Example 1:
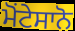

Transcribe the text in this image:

ਮੋਂਟੇਸਾਨੋ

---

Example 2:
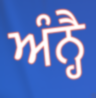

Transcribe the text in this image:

ਅੰਨ੍ਹੈ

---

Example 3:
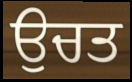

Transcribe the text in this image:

ਉਚਤ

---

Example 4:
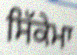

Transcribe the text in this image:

ਸਿੱਕੇਮਾ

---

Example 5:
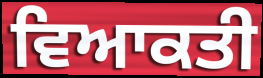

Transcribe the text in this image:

ਵਿਆਕਤੀ